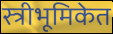
स्त्रीभूमिकेत